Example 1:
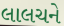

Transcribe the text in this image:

લાલચને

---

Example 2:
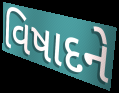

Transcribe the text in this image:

વિષાદને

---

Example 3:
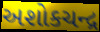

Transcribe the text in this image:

અશોકચન્દ્ર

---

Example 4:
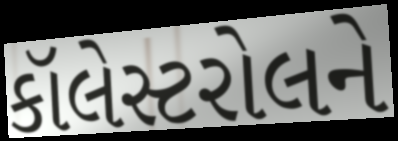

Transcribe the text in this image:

કૉલેસ્ટરોલને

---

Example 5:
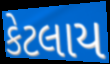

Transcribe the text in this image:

કેટલાય